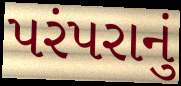
પરંપરાનું